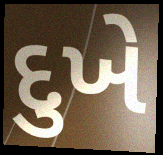
દુખે